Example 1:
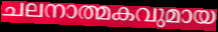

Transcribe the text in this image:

ചലനാത്മകവുമായ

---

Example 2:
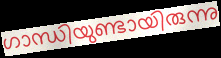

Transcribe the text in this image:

ഗാന്ധിയുണ്ടായിരുന്നു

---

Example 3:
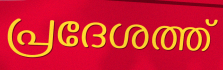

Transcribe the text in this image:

പ്രദേശത്ത്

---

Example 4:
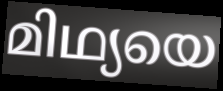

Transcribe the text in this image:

മിഥ്യയെ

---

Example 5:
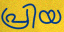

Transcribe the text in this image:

പ്രിയ